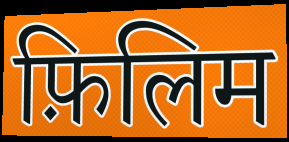
फ़िलिम